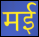
मई